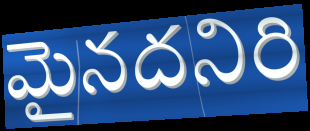
మైనదనిరి